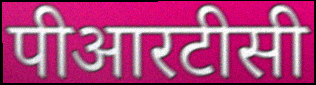
पीआरटीसी